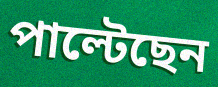
পাল্টেছেন